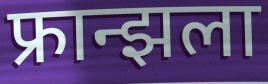
फ्रान्झला